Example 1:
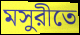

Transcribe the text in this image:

মসুরীতে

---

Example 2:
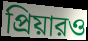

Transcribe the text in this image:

প্রিয়ারও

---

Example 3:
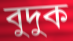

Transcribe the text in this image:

বুদুক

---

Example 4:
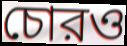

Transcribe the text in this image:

চোরও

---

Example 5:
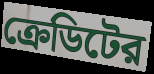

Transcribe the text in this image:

ক্রেডিটের